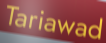
Tariawad